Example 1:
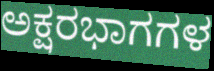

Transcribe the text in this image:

ಅಕ್ಷರಭಾಗಗಳ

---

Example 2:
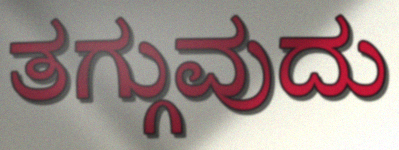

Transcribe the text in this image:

ತಗ್ಗುವುದು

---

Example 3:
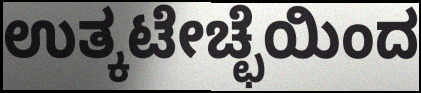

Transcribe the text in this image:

ಉತ್ಕಟೇಚ್ಛೆಯಿಂದ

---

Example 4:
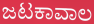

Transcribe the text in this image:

ಜಟಕಾವಾಲ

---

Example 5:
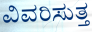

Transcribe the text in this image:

ವಿವರಿಸುತ್ತ